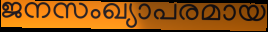
ജനസംഖ്യാപരമായ